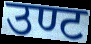
उण्ट